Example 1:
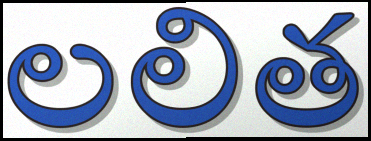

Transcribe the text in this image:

లలిత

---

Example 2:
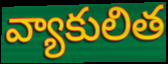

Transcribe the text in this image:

వ్యాకులిత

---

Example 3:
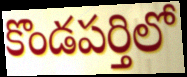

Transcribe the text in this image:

కొండపర్తిలో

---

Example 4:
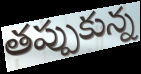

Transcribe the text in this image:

తప్పుకున్న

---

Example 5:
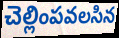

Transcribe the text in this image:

చెల్లింపవలసిన